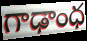
గాఢాంధ